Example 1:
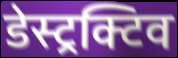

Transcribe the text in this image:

डेस्ट्रक्टिव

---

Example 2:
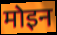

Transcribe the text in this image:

मोइन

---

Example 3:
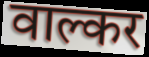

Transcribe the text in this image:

वाल्कर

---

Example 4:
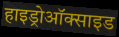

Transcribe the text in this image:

हाइड्रोऑक्साइड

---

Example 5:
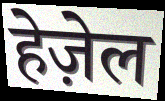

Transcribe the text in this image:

हेज़ेल